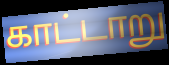
காட்டாறு